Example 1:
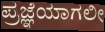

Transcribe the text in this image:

ಪ್ರಜ್ಞೆಯಾಗಲೀ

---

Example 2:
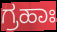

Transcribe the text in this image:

ಗ್ರಹಾಃ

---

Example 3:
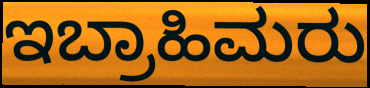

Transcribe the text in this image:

ಇಬ್ರಾಹಿಮರು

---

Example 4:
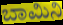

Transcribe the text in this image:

ಬಾಮಿನಿ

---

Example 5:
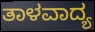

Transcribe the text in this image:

ತಾಳವಾದ್ಯ